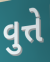
વુત્તે